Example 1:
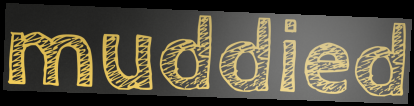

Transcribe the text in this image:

muddied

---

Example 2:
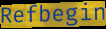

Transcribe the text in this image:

Refbegin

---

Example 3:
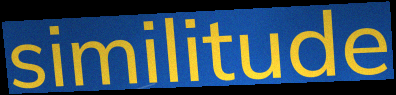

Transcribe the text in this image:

similitude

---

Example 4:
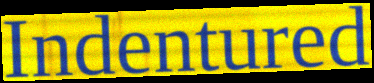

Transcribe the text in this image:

Indentured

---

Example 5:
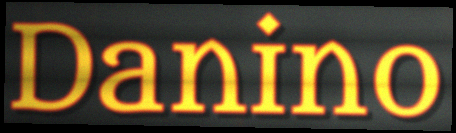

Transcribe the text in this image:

Danino